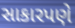
સાકારપણે